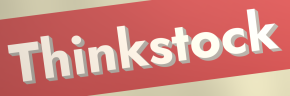
Thinkstock